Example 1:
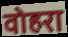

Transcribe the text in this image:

वोहरा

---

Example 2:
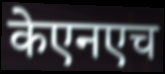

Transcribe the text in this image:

केएनएच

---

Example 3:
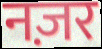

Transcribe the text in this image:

नज़र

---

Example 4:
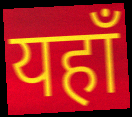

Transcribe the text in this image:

यहाँ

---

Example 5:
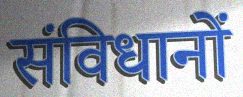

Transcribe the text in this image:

संविधानों